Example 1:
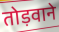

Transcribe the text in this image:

तोड़वाने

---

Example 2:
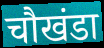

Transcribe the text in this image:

चौखंडा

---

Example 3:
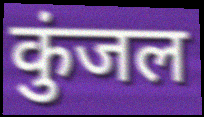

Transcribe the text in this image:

कुंजल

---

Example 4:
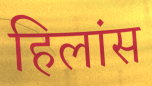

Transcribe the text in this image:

हिलांस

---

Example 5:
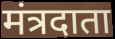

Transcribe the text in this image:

मंत्रदाता